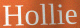
Hollie